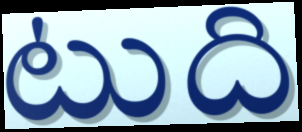
టుది